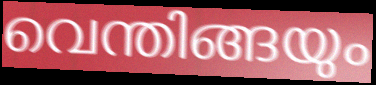
വെന്തിങ്ങയും